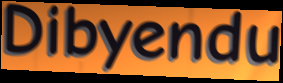
Dibyendu